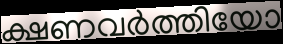
ക്ഷണവർത്തിയോ